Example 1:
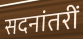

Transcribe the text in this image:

सदनांतरीं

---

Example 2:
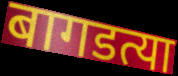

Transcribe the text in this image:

बागडत्या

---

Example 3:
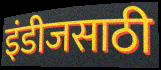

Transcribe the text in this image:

इंडीजसाठी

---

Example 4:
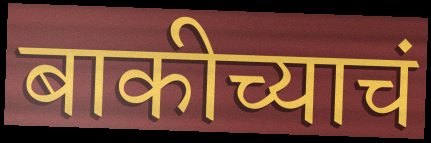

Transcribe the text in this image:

बाकीच्याचं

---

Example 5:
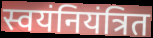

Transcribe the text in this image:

स्वयंनियंत्रित